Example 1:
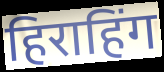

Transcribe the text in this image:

हिराहिंग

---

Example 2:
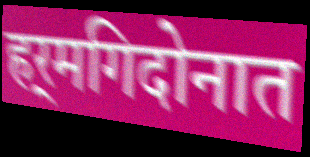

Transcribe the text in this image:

हर्मगिदोनात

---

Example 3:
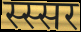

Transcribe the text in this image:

स्स्सर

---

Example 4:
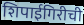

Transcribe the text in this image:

शिपाईगिरीची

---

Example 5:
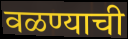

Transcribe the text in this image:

वळण्याची